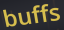
buffs